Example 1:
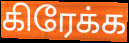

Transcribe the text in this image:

கிரேக்க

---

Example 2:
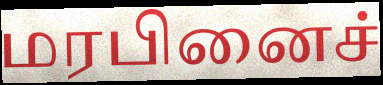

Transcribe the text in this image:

மரபினைச்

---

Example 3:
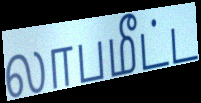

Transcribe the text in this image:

லாபமீட்ட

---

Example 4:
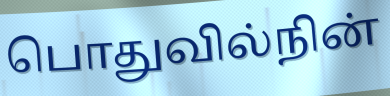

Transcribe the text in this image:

பொதுவில்நின்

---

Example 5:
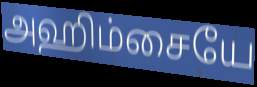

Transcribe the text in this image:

அஹிம்சையே